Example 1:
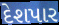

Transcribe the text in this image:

દેશપાર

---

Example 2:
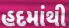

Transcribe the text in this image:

હદમાંથી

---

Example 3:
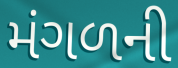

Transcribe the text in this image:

મંગળની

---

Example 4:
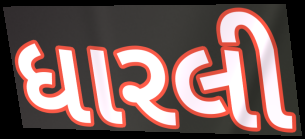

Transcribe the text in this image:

ધારલી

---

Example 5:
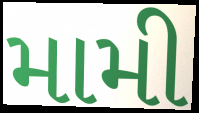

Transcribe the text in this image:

મામી